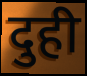
दुही